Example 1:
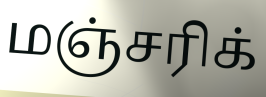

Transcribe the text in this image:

மஞ்சரிக்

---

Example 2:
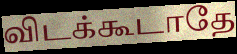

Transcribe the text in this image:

விடக்கூடாதே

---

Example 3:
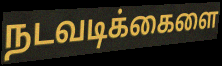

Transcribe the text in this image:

நடவடிக்கைளை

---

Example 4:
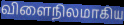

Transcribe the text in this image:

விளைநிலமாகிய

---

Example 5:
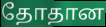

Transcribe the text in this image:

தோதான